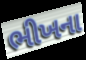
ભીખના